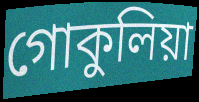
গোকুলিয়া